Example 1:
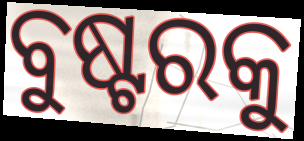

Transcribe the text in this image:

ବୁଷ୍ଟରକୁ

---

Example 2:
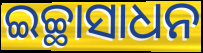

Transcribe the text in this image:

ଇଚ୍ଛାସାଧନ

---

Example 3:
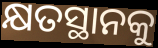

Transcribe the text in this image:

କ୍ଷତସ୍ଥାନକୁ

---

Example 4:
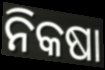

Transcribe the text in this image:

ନିକଷା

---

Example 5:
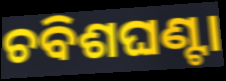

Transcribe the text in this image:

ଚବିଶଘଣ୍ଟା